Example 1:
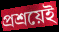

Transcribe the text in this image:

প্রশ্রয়েই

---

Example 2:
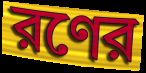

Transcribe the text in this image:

রণের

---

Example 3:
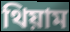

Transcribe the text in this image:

থিয়াম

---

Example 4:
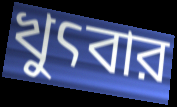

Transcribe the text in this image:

খুৎবার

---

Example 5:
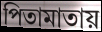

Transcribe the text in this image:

পিতামাতায়